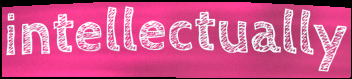
intellectually